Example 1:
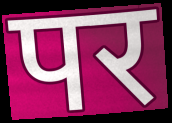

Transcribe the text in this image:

पर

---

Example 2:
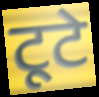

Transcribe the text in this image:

टूटे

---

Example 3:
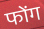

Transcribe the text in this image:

फोंग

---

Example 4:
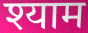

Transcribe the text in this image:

श्‍याम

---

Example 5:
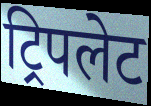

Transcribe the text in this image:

ट्रिपलेट